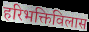
हरिभक्तिविलास